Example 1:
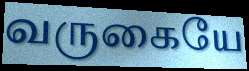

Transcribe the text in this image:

வருகையே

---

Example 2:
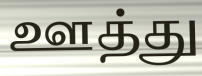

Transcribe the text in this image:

ஊத்து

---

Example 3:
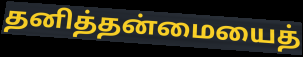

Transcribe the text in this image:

தனித்தன்மையைத்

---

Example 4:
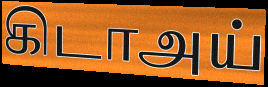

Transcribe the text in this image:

கிடாஅய்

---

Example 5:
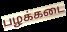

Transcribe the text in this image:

பழக்கடை